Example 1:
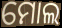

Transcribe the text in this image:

ମୋଲ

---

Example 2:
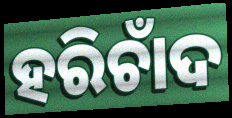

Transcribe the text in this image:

ହରିଚାଁଦ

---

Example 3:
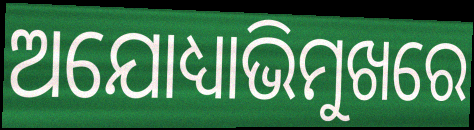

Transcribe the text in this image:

ଅଯୋଧ୍ୟାଭିମୁଖରେ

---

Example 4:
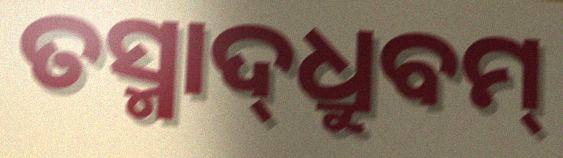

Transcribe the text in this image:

ତସ୍ମାଦ୍‌ଧ୍ରୁବମ୍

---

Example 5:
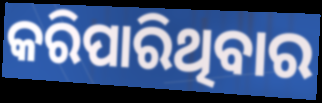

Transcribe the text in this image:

କରିପାରିଥିବାର